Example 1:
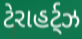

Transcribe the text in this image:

ટેરાહર્ટ્ઝ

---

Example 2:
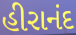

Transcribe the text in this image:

હીરાનંદ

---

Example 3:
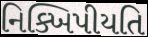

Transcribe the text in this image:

નિક્ખિપીયતિ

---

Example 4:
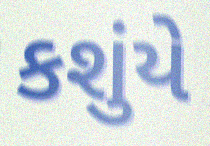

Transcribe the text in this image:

કશુંયે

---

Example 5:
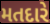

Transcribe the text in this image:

મતદારે